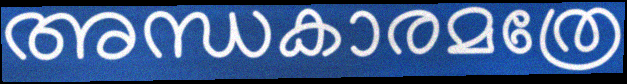
അന്ധകാരമത്രേ